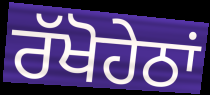
ਰੱਖੋਹੇਠਾਂ